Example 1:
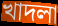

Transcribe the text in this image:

খাদলা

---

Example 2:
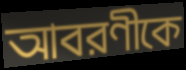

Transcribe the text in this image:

আবরণীকে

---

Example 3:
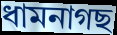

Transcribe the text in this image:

ধামনাগছ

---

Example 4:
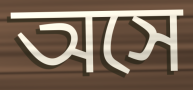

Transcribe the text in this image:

অসে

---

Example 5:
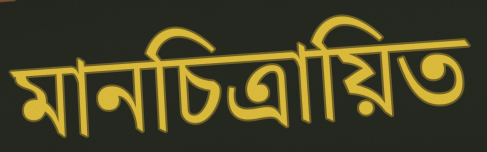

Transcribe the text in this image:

মানচিত্রায়িত